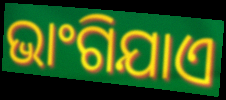
ଭାଂଗିଯାଏ